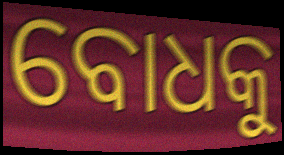
ବୋଧକୁ